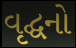
વૃદ્ઘનો